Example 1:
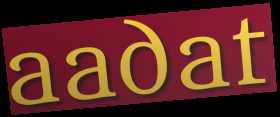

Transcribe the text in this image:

aadat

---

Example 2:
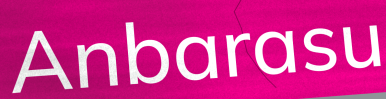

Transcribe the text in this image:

Anbarasu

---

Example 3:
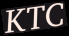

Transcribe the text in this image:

KTC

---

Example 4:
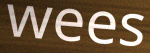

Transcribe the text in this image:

wees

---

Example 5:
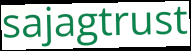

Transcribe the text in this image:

sajagtrust